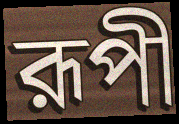
রূপী